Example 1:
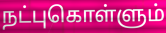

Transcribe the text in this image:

நட்புகொள்ளும்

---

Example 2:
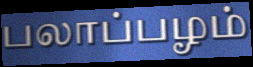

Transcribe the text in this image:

பலாப்பழம்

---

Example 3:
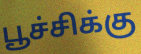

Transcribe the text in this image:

பூச்சிக்கு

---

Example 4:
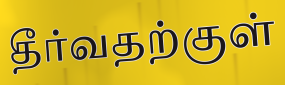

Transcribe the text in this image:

தீர்வதற்குள்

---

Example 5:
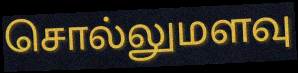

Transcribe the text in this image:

சொல்லுமளவு